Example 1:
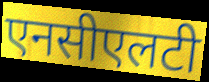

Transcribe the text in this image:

एनसीएलटी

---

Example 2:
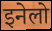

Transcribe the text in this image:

इनेलो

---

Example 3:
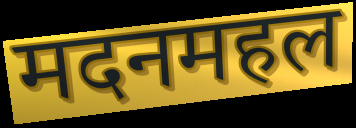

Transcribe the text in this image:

मदनमहल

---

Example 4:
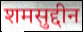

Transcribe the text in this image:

शमसुद्दीन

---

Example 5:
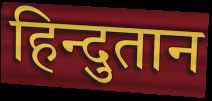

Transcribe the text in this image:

हिन्दुतान